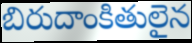
బిరుదాంకితులైన